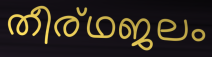
തീര്ഥജലം